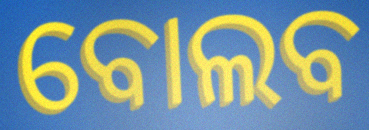
ବୋଲବ